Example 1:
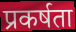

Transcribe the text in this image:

प्रकर्षता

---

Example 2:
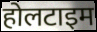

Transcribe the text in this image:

होलटाइम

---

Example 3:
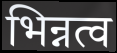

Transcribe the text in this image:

भिन्नत्व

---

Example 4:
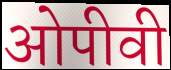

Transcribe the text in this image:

ओपीवी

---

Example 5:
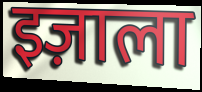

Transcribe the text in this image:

इज़ाला